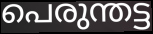
പെരുന്തട്ട